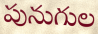
పునుగుల